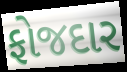
ફોજદાર